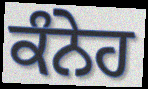
ਕੰਨੇਹ